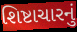
શિષ્ટાચારનું